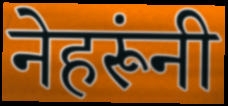
नेहरूंनी